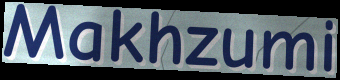
Makhzumi